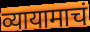
व्यायामाचं